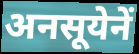
अनसूयेनें